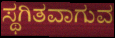
ಸ್ಥಗಿತವಾಗುವ